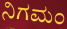
ನಿಗಮಂ